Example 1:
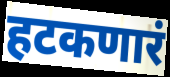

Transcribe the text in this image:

हटकणारं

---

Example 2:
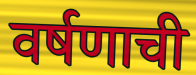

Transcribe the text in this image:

वर्षणाची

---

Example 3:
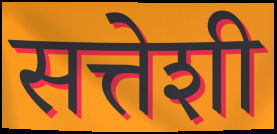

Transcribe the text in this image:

सत्तेशी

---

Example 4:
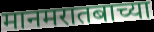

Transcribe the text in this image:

मानमरातबाच्या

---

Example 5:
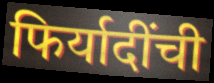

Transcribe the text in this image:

फिर्यादींची